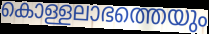
കൊള്ളലാഭത്തെയും